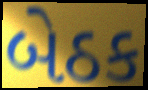
બેઠક